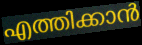
എത്തിക്കാൻ